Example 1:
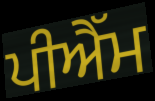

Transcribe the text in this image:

ਪੀਐੱਮ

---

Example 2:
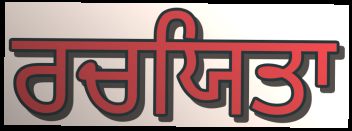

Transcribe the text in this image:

ਰਚਯਿਤਾ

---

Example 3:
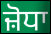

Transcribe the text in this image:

ਜ਼ੋਧਾ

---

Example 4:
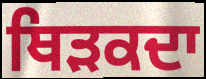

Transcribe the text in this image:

ਥਿੜਕਦਾ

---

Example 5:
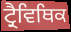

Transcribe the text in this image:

ਟ੍ਰੈਵਿਥਿਕ